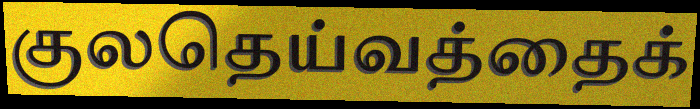
குலதெய்வத்தைக்